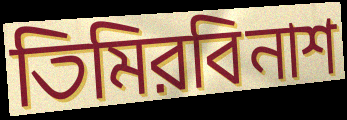
তিমিরবিনাশ